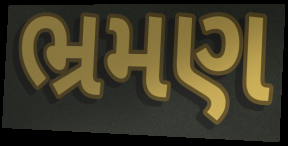
ભ્રમણ